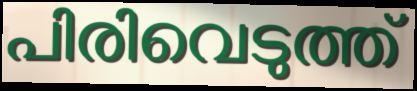
പിരിവെടുത്ത്